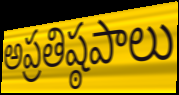
అప్రతిష్ఠపాలు